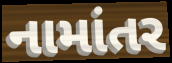
નામાંતર